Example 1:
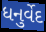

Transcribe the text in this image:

ધનુર્વેદ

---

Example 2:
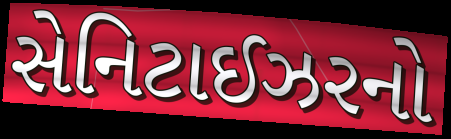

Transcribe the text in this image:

સેનિટાઈઝરનો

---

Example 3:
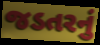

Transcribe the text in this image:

જડતરનું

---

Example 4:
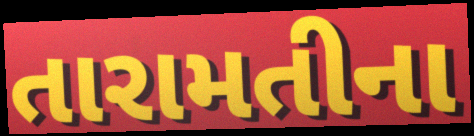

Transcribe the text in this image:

તારામતીના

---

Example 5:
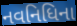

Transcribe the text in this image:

નવનિધિના